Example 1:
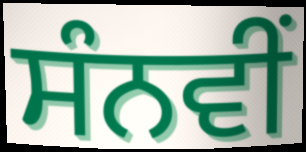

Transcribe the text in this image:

ਸੰਨਵੀਂ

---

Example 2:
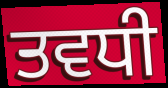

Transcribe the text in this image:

ਤਵਧੀ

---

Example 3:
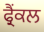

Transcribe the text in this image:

ਫ੍ਰੈਂਕਲ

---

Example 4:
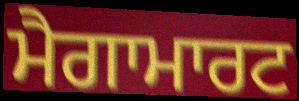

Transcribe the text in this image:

ਮੈਗਾਮਾਰਟ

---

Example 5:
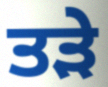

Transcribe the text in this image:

ਤੜੇ